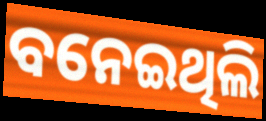
ବନେଇଥିଲି